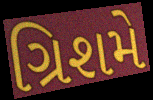
ગ્રિશમે